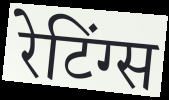
रेटिंग्स